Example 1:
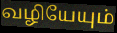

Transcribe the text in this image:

வழியேயும்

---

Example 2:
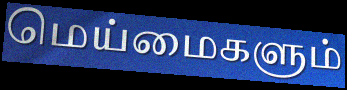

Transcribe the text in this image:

மெய்மைகளும்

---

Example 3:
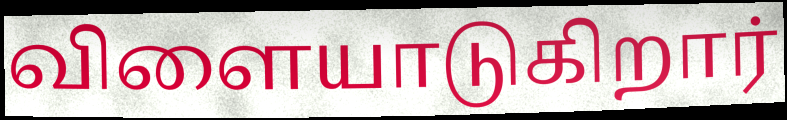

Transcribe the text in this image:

விளையாடுகிறார்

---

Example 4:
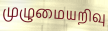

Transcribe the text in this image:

முழுமையறிவு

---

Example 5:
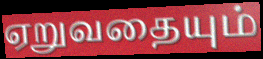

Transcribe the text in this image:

ஏறுவதையும்